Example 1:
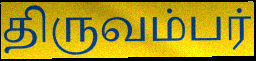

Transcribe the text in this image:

திருவம்பர்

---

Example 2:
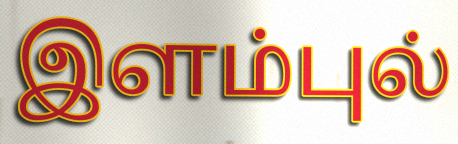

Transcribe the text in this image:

இளம்புல்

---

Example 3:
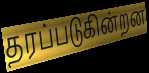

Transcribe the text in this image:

தரப்படுகின்றன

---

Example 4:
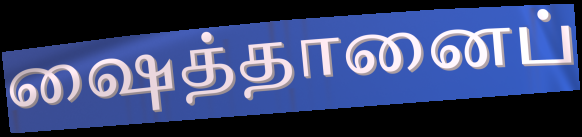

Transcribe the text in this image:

ஷைத்தானைப்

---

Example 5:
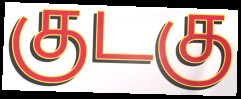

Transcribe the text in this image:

குடகு